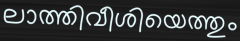
ലാത്തിവീശിയെത്തും